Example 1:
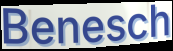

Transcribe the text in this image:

Benesch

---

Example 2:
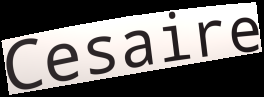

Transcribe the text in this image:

Cesaire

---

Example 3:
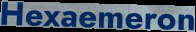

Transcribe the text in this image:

Hexaemeron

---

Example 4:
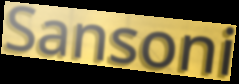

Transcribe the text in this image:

Sansoni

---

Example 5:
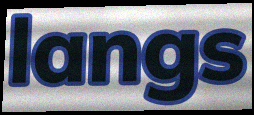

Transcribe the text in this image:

langs